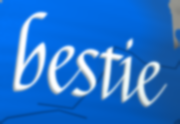
bestie